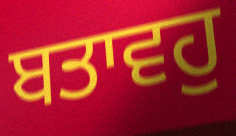
ਬਤਾਵਹੁ